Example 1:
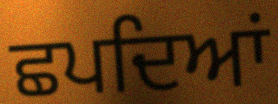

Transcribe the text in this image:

ਛਪਦਿਆਂ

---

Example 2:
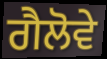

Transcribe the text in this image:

ਗੈਲੋਵੇ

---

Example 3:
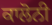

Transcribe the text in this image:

ਕਾਲੋਨੀ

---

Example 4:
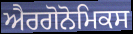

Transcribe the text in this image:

ਐਰਗੋਨੋਮਿਕਸ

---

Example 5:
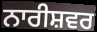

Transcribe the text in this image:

ਨਾਰੀਸ਼ਵਰ